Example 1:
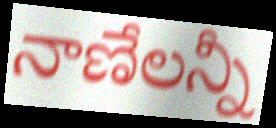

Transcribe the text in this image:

నాణేలన్నీ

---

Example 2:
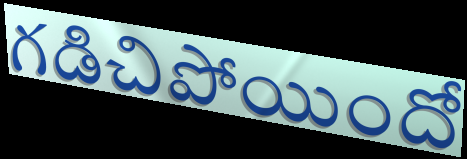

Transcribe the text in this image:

గడిచిపోయిందో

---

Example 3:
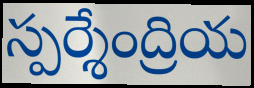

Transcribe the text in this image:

స్పర్శేంద్రియ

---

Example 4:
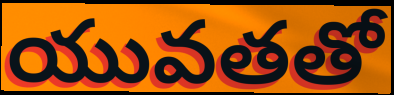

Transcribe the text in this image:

యువతతో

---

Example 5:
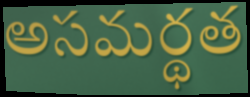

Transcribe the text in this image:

అసమర్థత